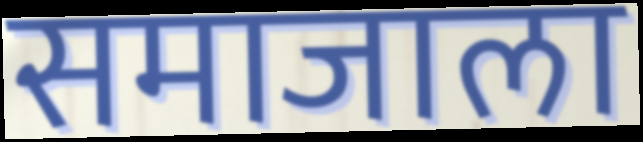
समाजाला